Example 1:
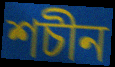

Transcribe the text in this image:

শচীন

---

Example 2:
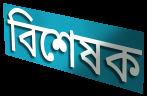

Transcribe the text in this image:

বিশেষক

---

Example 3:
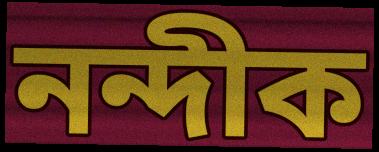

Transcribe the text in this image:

নন্দীক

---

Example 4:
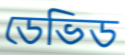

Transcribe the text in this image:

ডেভিড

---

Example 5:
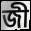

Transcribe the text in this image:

জী